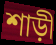
শাড়ী